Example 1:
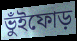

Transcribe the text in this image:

ভুঁইফোড়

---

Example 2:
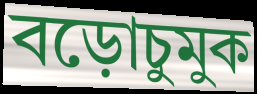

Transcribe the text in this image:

বড়োচুমুক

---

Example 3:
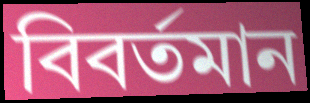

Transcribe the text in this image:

বিবর্তমান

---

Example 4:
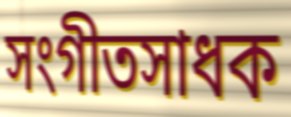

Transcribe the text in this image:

সংগীতসাধক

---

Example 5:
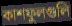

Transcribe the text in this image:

কাশফুলগুলি